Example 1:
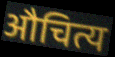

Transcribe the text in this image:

औचित्य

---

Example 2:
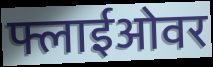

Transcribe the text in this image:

फ्लाईओवर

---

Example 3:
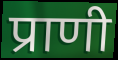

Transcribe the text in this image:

प्राणी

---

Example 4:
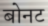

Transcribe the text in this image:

बोनट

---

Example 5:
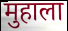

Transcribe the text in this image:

मुहाला